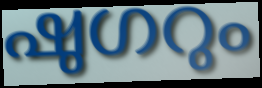
ഷുഗറും